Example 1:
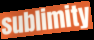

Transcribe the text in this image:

sublimity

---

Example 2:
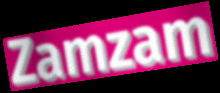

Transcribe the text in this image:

Zamzam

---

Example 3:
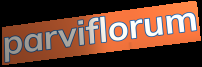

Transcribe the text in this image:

parviflorum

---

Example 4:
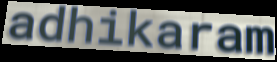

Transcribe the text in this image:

adhikaram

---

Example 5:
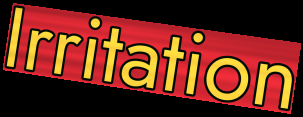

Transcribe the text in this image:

Irritation